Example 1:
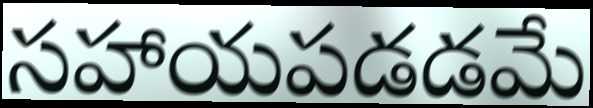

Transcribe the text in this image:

సహాయపడడమే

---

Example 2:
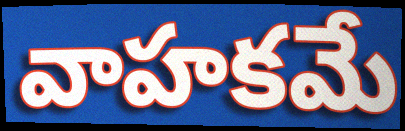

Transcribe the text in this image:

వాహకమే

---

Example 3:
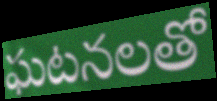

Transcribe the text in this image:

ఘటనలతో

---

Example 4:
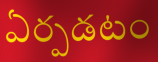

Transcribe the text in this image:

ఏర్పడటం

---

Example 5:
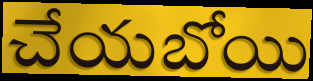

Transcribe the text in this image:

చేయబోయి